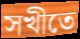
সখীতে